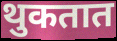
थुकतात